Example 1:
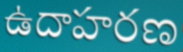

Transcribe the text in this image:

ఉదాహరణ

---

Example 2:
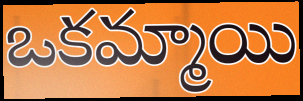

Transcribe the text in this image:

ఒకమ్మాయి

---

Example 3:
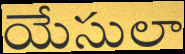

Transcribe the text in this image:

యేసులా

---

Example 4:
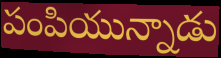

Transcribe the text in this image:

పంపియున్నాడు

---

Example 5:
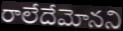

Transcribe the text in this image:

రాలేదేమోనని